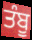
ਤੰਬੂ